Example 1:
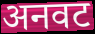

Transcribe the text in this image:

अनवट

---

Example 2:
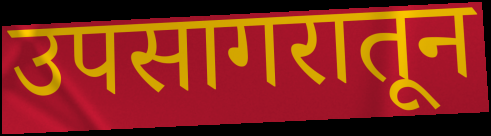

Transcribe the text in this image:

उपसागरातून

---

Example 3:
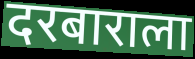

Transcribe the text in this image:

दरबाराला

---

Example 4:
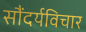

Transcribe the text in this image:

सौंदर्यविचार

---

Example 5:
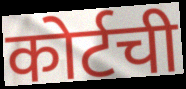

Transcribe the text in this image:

कोर्टची